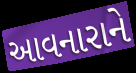
આવનારાને